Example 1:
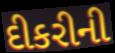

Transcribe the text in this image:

દીકરીની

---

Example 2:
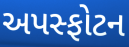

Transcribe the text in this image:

અપસ્ફોટન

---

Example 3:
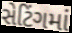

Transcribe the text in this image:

સેટિંગમાં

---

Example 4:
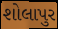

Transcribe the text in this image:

શોલાપુર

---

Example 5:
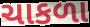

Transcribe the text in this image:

ચાકળા